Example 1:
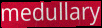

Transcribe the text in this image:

medullary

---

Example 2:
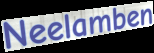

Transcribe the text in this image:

Neelamben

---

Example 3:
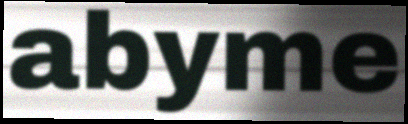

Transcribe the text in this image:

abyme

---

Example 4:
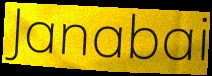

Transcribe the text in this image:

Janabai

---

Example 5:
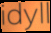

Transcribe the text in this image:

idyll